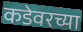
कडेवरच्या